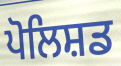
ਪੋਲਿਸ਼ਡ